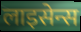
लाइसेन्स